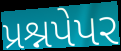
પ્રશ્નપેપર